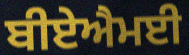
ਬੀਏਐਮਈ